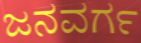
ಜನವರ್ಗ